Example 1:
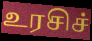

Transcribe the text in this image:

உரசிச்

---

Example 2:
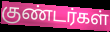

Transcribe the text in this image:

குண்டர்கள்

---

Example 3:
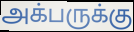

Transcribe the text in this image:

அக்பருக்கு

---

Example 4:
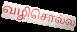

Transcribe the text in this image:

வழிசொல்ல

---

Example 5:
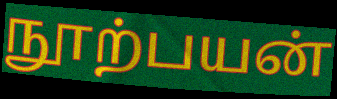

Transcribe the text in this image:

நூற்பயன்